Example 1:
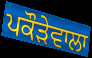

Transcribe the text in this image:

ਪਕੌੜੇਵਾਲਾ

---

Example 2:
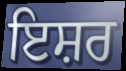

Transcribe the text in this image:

ਇਸ਼ਰ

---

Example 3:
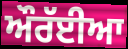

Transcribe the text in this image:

ਔਰੱਈਆ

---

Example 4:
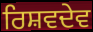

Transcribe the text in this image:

ਰਿਸ਼ਵਦੇਵ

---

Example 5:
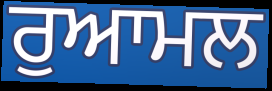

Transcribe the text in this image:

ਰੁਆਮਲ